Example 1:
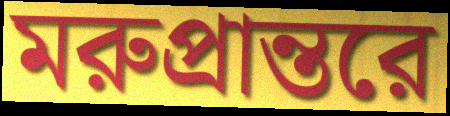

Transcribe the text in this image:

মরুপ্রান্তরে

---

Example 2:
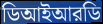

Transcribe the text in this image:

ডিআইআরডি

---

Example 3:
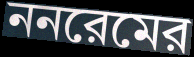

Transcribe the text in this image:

ননরেমের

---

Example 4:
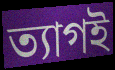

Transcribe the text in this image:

ত্যাগই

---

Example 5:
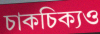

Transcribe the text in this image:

চাকচিক্যও